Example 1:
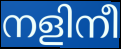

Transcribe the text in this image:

നളിനീ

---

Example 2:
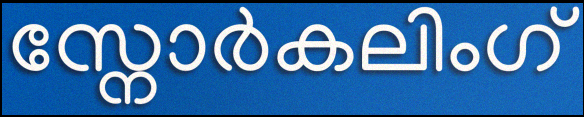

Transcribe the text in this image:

സ്നോർകലിംഗ്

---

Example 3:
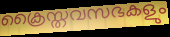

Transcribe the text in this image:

ക്രൈസ്തവസഭകളും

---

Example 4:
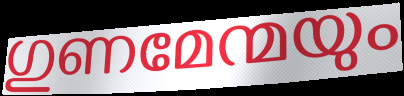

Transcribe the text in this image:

ഗുണമേന്മയും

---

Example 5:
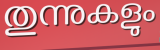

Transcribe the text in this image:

തുന്നുകളും